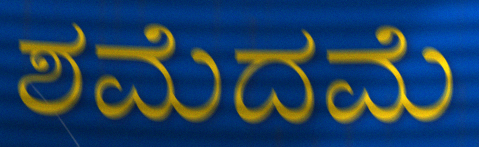
ಶಮೆದಮೆ